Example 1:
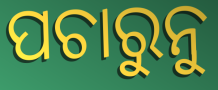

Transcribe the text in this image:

ପଚାରୁନୁ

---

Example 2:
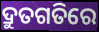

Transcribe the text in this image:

ଦ୍ରୁତଗତିରେ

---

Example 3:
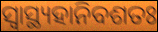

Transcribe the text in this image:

ସ୍ୱାସ୍ଥ୍ୟହାନିବଶତଃ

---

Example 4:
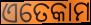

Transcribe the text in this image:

ଏତେକାମ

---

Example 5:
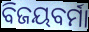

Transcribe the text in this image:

ବିଜୟବର୍ମା